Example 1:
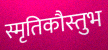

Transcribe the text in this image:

स्मृतिकौस्तुभ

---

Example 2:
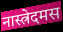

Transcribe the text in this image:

नास्त्रेदमस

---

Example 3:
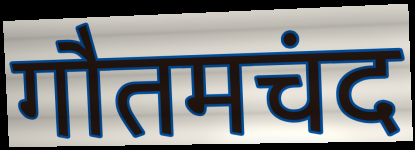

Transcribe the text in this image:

गौतमचंद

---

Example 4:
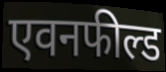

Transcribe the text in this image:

एवनफील्ड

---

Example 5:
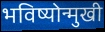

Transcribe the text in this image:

भविष्योन्मुखी